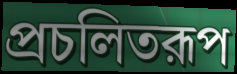
প্রচলিতরূপ